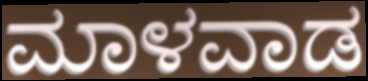
ಮಾಳವಾಡ